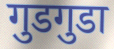
गुडगुडा